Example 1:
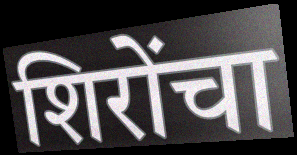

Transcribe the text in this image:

शिरोंचा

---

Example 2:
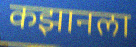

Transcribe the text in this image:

कझानला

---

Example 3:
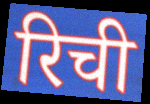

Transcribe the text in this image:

रिची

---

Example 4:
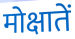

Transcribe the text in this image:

मोक्षातें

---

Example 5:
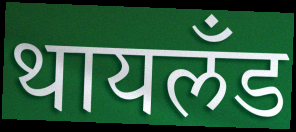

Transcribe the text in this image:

थायलँड